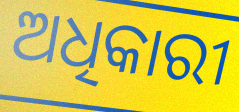
ଅଧିକାରୀ